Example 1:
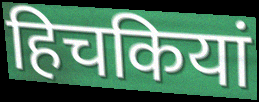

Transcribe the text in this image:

हिचकियां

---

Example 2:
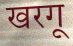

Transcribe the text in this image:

खरगू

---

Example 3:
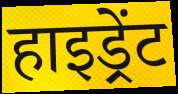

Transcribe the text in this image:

हाइड्रेंट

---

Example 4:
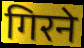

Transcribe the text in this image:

गिरने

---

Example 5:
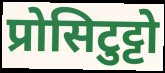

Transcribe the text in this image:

प्रोसिटुट्टो